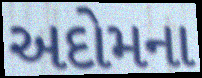
અદોમના